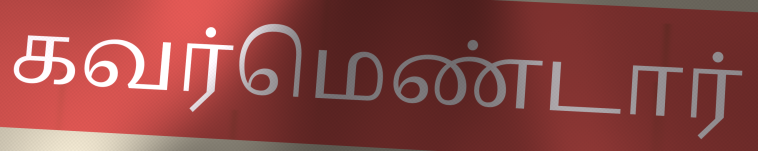
கவர்மெண்டார்